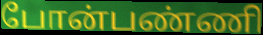
போன்பண்ணி